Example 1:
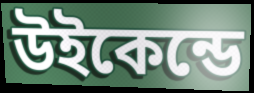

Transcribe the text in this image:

উইকেন্ডে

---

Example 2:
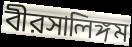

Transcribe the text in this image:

বীরসালিঙ্গম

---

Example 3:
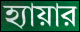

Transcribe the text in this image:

হ্যায়ার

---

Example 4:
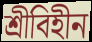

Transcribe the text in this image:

শ্রীবিহীন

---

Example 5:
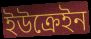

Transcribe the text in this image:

ইউক্রেইন